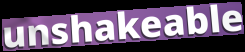
unshakeable